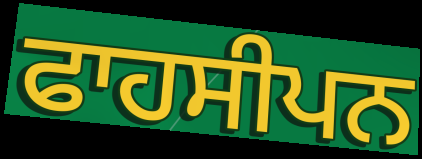
ਫਾਹਸੀਪਨ